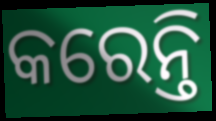
କରେନ୍ତି